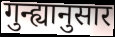
गुन्ह्यानुसार